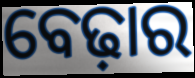
ବେଢ଼ାର